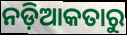
ନଡ଼ିଆକତାରୁ